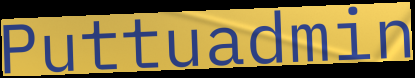
Puttuadmin